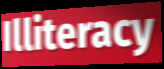
Illiteracy